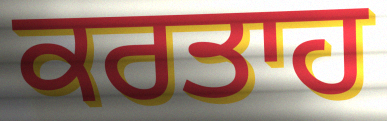
ਕਰਤਾਹ